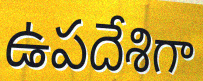
ఉపదేశిగా